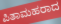
ಪಿತಾಮಹರಾದ